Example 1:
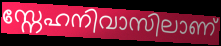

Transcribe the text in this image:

സ്നേഹനിവാസിലാണ്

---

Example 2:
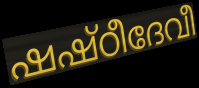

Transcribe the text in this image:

ഷഷ്ഠീദേവീ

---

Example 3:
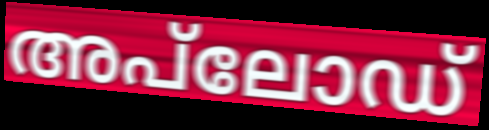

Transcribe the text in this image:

അപ്‌ലോഡ്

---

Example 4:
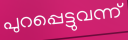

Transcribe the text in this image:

പുറപ്പെട്ടുവന്ന്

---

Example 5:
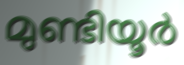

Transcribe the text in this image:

മുണ്ടിയൂർ